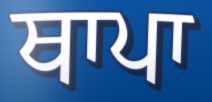
ਥਾਪਾ